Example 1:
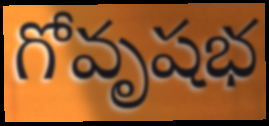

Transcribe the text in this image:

గోవృషభ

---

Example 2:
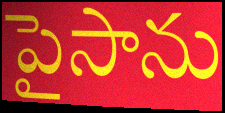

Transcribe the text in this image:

పైసాను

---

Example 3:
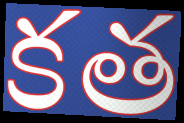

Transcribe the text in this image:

కత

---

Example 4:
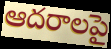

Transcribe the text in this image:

ఆదరాలపై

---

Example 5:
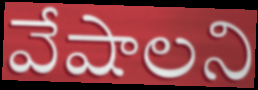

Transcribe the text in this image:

వేషాలని